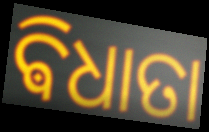
ଵିଧାତା